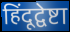
हिंदूद्वेष्टा